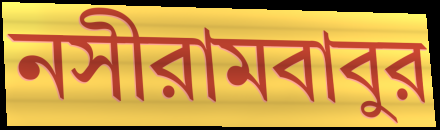
নসীরামবাবুর